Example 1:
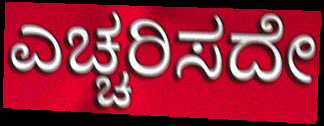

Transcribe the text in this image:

ಎಚ್ಚರಿಸದೇ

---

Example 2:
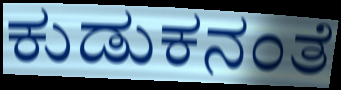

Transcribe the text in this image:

ಕುಡುಕನಂತೆ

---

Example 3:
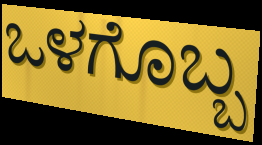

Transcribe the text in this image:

ಒಳಗೊಬ್ಬ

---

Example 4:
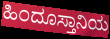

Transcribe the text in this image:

ಹಿಂದೂಸ್ತಾನಿಯ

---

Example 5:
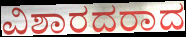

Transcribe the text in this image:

ವಿಶಾರದರಾದ